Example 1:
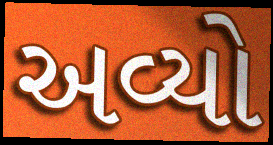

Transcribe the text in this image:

અવ્યો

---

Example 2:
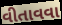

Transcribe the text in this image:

વીતાવવા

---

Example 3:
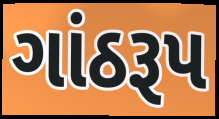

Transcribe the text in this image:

ગાંઠરૂપ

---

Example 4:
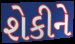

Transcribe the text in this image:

શેકીને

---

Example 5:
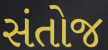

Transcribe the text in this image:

સંતોજ